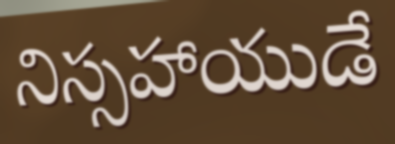
నిస్సహాయుడే